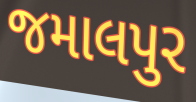
જમાલપુર